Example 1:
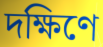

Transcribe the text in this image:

দক্ষিণে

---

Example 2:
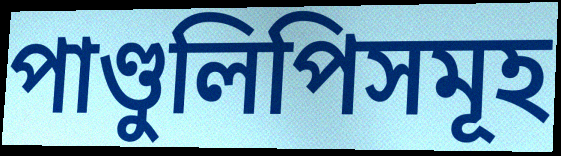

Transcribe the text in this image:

পাণ্ডুলিপিসমূহ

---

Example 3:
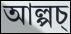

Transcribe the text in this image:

আল্পচ্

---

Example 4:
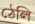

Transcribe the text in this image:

ঠেলি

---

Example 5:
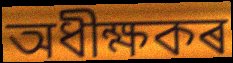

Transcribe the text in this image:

অধীক্ষকৰ